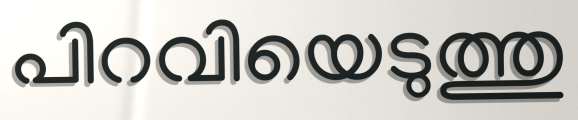
പിറവിയെടുത്തു